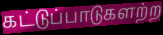
கட்டுப்பாடுகளற்ற